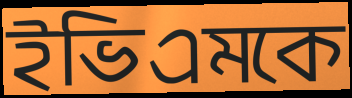
ইভিএমকে